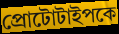
প্রোটোটাইপকে